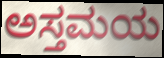
ಅಸ್ತಮಯ